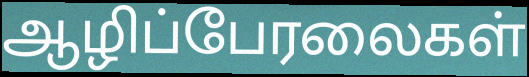
ஆழிப்பேரலைகள்